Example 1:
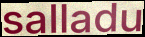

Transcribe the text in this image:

salladu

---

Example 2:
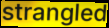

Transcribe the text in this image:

strangled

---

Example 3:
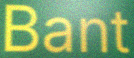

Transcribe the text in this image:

Bant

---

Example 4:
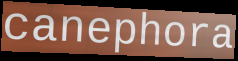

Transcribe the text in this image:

canephora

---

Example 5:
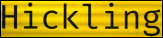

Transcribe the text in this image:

Hickling